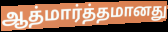
ஆத்மார்த்தமானது